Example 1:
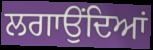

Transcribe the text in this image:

ਲਗਾਉਂਦਿਆਂ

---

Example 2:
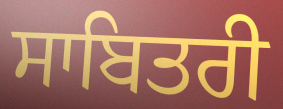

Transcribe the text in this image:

ਸਾਬਿਤਰੀ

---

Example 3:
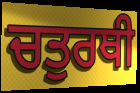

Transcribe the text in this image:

ਚਤੁਰਥੀ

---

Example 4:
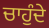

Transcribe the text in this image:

ਚਾਹੁੰਦੇ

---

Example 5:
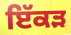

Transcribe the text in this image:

ਇੱਕੜ